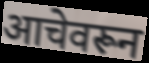
आचेवरून